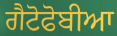
ਗੈਟੋਫੋਬੀਆ